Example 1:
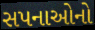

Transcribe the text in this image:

સપનાઓનો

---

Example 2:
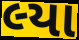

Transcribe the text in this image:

લ્યા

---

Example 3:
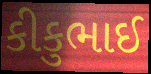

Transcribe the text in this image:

કીકુભાઈ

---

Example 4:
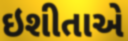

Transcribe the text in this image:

ઇશીતાએ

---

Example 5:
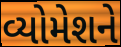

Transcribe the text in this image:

વ્યોમેશને